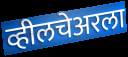
व्हीलचेअरला